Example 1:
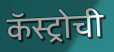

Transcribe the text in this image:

कॅस्ट्रोची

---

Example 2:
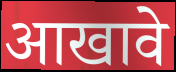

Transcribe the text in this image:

आखावे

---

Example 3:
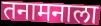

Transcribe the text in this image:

तनामनाला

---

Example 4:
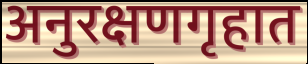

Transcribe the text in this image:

अनुरक्षणगृहात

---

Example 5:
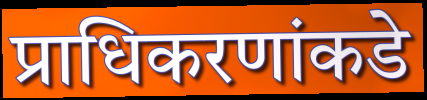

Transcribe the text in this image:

प्राधिकरणांकडे